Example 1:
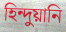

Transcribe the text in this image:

হিন্দুয়ানি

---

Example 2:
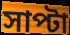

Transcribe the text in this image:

সাপ্টা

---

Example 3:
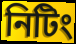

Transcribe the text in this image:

নিটিং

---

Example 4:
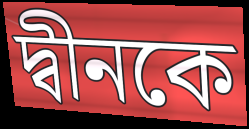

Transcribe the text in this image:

দ্বীনকে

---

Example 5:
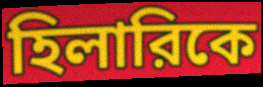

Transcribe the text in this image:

হিলারিকে